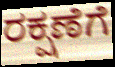
ರಕ್ಷಣೆಗೆ